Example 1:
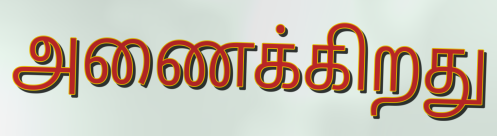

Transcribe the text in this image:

அணைக்கிறது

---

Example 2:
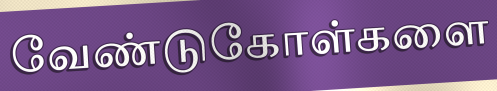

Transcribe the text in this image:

வேண்டுகோள்களை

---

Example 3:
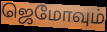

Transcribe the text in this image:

ஜெமோவும்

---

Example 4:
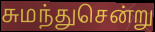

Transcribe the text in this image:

சுமந்துசென்று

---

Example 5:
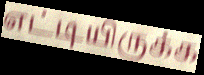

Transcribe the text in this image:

எட்டியிருக்க